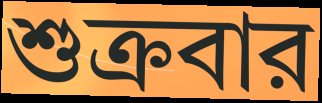
শুক্রবার